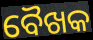
ବୈଖକ